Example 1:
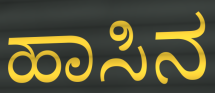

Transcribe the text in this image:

ಹಾಸಿನ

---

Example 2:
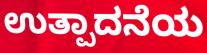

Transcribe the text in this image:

ಉತ್ಪಾದನೆಯ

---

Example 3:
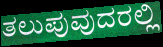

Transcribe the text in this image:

ತಲುಪುವುದರಲ್ಲಿ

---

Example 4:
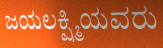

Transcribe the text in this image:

ಜಯಲಕ್ಷ್ಮಿಯವರು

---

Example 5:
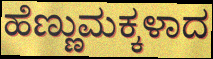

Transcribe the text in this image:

ಹೆಣ್ಣುಮಕ್ಕಳಾದ